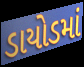
ડાયોડમાં